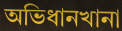
অভিধানখানা